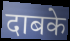
दाबके